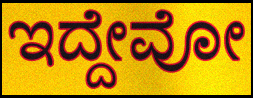
ಇದ್ದೇವೋ